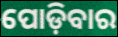
ପୋଡ଼ିବାର